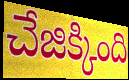
చేజిక్కింది